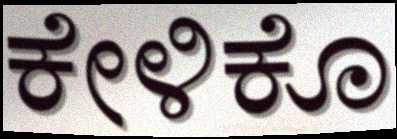
ಕೇಳಿಕೊ